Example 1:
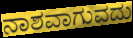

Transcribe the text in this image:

ನಾಶವಾಗುವದು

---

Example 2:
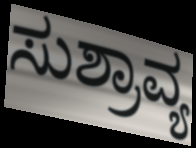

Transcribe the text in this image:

ಸುಶ್ರಾವ್ಯ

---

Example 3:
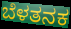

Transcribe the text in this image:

ಬೆಳತನಕ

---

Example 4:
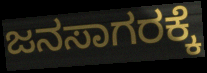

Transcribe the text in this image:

ಜನಸಾಗರಕ್ಕೆ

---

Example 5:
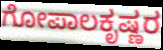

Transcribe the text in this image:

ಗೋಪಾಲಕೃಷ್ಣರ